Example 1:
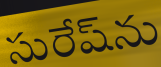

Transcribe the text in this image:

సురేష్‌ను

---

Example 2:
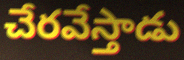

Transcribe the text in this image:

చేరవేస్తాడు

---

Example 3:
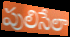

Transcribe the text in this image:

పులిసేలా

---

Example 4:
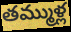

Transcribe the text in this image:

తమ్ముళ్ల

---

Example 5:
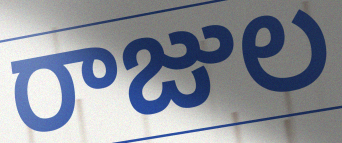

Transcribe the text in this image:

రాజుల